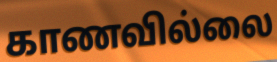
காணவில்லை